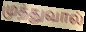
முத்துவால்